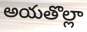
అయతొల్లా